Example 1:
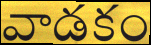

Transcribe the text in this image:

వాడకం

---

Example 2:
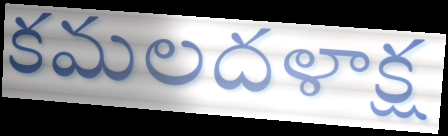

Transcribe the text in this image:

కమలదళాక్ష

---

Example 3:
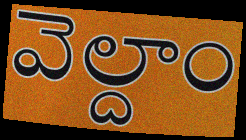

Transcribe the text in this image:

వెల్దాం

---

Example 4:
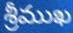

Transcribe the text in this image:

శ్రీముఖ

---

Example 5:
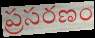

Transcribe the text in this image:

ప్రసరణం